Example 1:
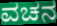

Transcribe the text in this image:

ವಚನ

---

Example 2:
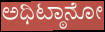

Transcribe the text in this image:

ಅಧಿಟ್ಠಾನೋ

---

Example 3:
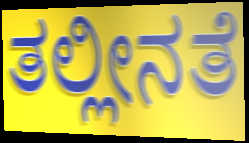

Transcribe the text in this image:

ತಲ್ಲೀನತೆ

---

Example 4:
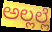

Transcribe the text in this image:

ಅಲ್ಲಲ್ಲೆ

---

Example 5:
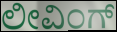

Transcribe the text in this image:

ಲೀವಿಂಗ್